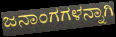
ಜನಾಂಗಗಳನ್ನಾಗಿ